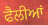
ਫੈਲੀਆਂ